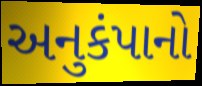
અનુકંપાનો